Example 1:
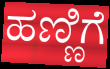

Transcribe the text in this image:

ಹಣ್ಣಿಗೆ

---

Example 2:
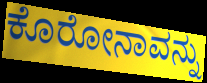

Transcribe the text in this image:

ಕೊರೋನಾವನ್ನು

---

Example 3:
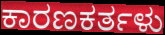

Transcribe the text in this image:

ಕಾರಣಕರ್ತಳು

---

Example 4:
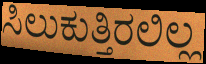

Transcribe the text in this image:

ಸಿಲುಕುತ್ತಿರಲಿಲ್ಲ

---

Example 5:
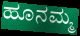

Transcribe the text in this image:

ಹೂನಮ್ಮ